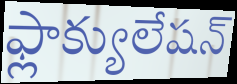
ఫ్లాక్యులేషన్